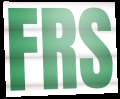
FRS